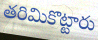
తరిమికొట్టారు